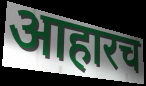
आहारच